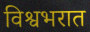
विश्वभरात